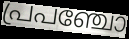
പ്രപഞ്ചോ